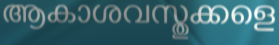
ആകാശവസ്തുക്കളെ